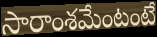
సారాంశమేంటంటే